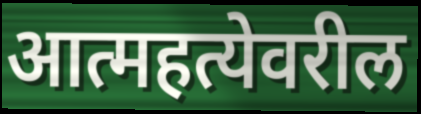
आत्महत्येवरील